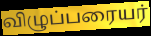
விழுப்பரையர்